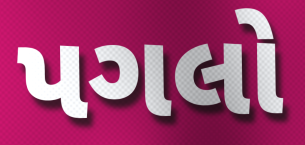
પગલો